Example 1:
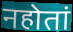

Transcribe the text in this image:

नहोतां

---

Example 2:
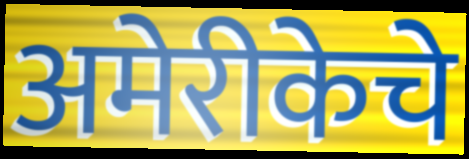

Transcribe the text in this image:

अमेरीकेचे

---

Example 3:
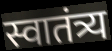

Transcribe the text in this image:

स्‍वातंत्र्य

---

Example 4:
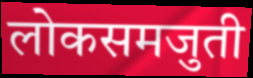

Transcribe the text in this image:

लोकसमजुती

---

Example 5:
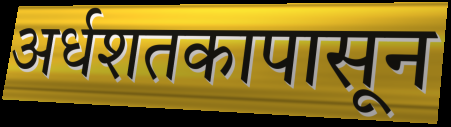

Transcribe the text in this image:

अर्धशतकापासून